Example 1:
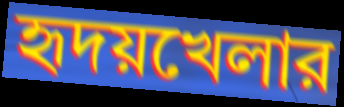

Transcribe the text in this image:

হৃদয়খেলার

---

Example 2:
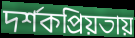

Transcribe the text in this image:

দর্শকপ্রিয়তায়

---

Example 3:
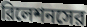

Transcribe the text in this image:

রিলেশনসের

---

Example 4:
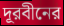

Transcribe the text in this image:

দূরবীনের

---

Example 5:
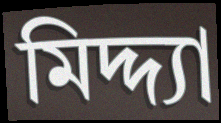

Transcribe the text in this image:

মিদ্দ্যা